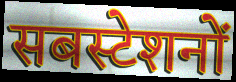
सबस्टेशनों